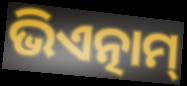
ଭିଏତ୍ନାମ୍